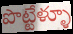
పొట్టేళ్ళూ